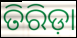
ତିରିଡ଼ା